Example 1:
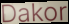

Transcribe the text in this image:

Dakor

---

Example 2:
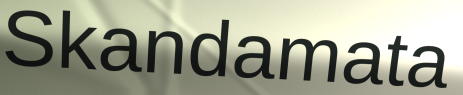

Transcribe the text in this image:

Skandamata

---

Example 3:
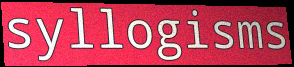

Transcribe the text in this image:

syllogisms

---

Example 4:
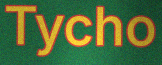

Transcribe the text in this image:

Tycho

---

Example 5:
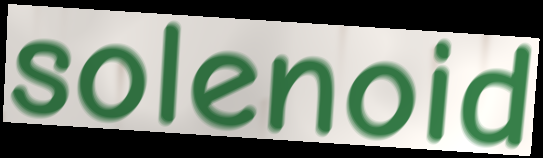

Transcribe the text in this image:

solenoid